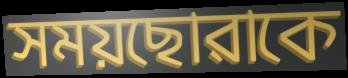
সময়ছোৱাকে